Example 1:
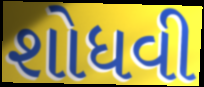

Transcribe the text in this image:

શોધવી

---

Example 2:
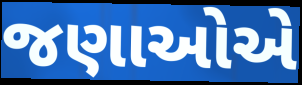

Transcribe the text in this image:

જણાઓએ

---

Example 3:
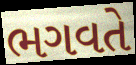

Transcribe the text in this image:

ભગવતે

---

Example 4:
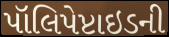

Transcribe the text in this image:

પૉલિપેપ્ટાઇડની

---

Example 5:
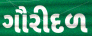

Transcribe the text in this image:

ગૌરીદળ